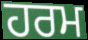
ਹਰਮ